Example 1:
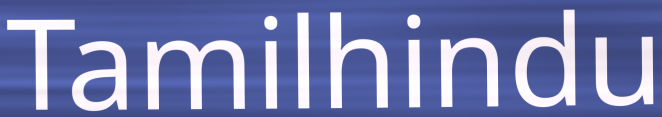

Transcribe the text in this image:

Tamilhindu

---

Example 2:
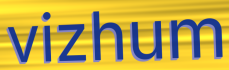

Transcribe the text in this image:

vizhum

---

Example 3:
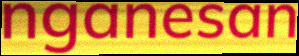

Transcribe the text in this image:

nganesan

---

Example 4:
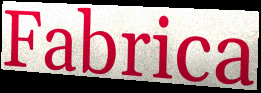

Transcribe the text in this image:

Fabrica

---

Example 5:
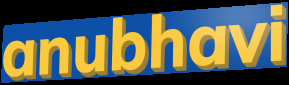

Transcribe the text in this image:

anubhavi